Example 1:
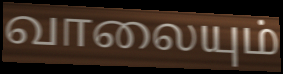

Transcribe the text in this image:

வாலையும்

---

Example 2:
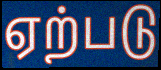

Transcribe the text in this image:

ஏற்படு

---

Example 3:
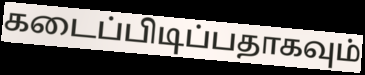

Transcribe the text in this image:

கடைப்பிடிப்பதாகவும்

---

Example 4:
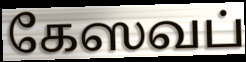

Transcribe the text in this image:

கேஸவப்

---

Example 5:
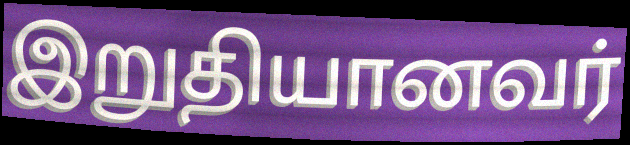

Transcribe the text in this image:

இறுதியானவர்